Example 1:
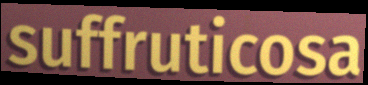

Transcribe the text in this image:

suffruticosa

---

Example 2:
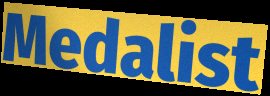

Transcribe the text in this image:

Medalist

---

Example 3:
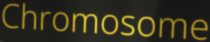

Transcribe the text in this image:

Chromosome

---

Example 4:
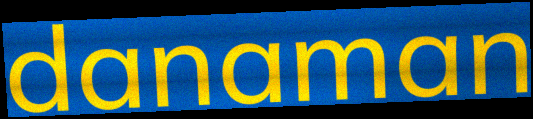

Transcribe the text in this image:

danaman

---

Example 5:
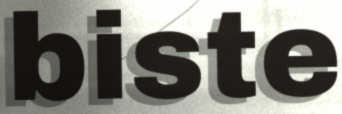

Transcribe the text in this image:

biste